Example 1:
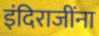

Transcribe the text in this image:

इंदिराजींना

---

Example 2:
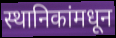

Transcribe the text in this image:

स्थानिकांमधून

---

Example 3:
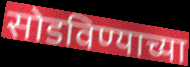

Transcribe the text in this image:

सोडविण्याच्या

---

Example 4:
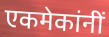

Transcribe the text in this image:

एकमेकांनीं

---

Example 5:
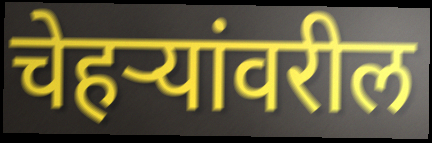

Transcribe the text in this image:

चेहऱ्यांवरील